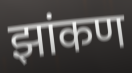
झांकण